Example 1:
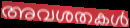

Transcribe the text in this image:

അവശതകൾ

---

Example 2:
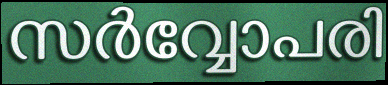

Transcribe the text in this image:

സർവ്വോപരി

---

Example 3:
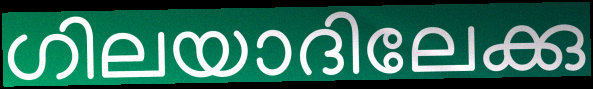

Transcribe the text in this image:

ഗിലയാദിലേക്കു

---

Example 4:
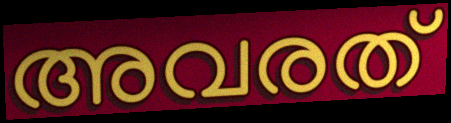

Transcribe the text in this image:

അവരത്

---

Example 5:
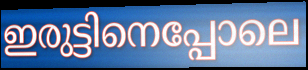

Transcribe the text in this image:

ഇരുട്ടിനെപ്പോലെ